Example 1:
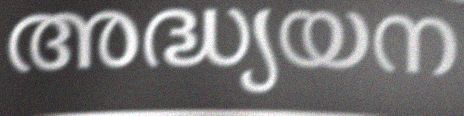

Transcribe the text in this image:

അദ്ധ്യയന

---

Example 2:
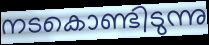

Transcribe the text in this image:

നടകൊണ്ടിടുന്നു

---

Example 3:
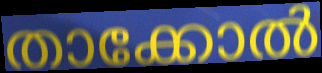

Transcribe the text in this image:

താക്കോൽ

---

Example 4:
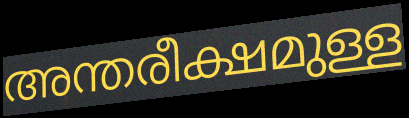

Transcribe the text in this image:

അന്തരീക്ഷമുള്ള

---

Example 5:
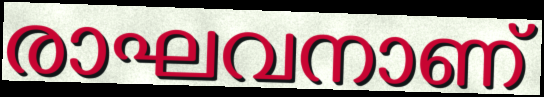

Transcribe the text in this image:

രാഘവനാണ്